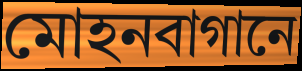
মোহনবাগানে